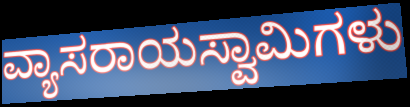
ವ್ಯಾಸರಾಯಸ್ವಾಮಿಗಳು